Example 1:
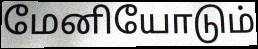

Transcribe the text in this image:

மேனியோடும்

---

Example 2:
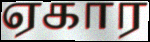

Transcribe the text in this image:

ஏகார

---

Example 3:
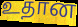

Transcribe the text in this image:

உதான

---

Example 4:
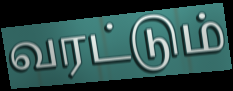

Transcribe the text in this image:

வரட்டும்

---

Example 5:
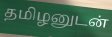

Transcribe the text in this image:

தமிழனுடன்